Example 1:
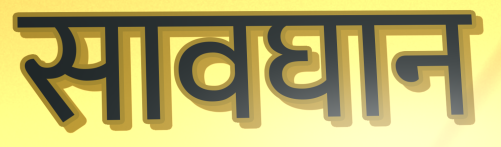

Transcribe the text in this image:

सावघान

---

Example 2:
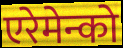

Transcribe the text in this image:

एरेमेन्को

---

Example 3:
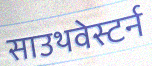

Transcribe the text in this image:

साउथवेस्टर्न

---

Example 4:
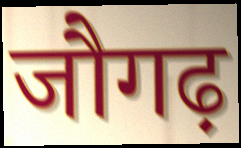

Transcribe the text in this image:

जौगढ़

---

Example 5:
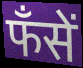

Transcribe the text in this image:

फँसें